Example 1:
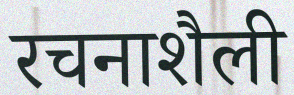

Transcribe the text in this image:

रचनाशैली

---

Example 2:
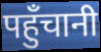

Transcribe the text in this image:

पहुँचानी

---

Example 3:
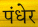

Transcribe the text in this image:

पंधेर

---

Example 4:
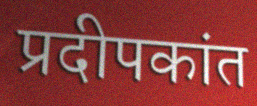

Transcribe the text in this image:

प्रदीपकांत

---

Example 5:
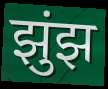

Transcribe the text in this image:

झुंझ